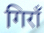
गिराँ